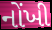
નોંખી